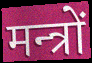
मन्त्रों